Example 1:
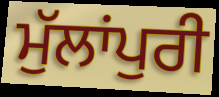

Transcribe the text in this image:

ਮੁੱਲਾਂਪੁਰੀ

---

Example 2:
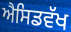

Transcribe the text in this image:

ਐਸਿਡਵੱਖ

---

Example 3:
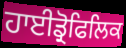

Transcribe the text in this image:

ਹਾਈਡ੍ਰੋਫਿਲਿਕ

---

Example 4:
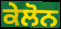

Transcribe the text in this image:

ਕੇਲੋਨ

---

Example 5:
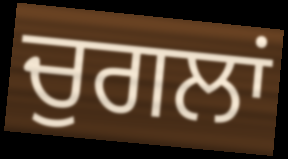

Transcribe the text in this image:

ਚੁਗਲਾਂ